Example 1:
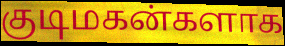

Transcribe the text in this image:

குடிமகன்களாக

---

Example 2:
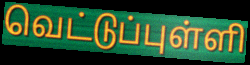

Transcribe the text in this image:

வெட்டுப்புள்ளி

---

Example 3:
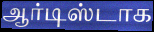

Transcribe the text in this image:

ஆர்டிஸ்டாக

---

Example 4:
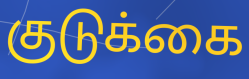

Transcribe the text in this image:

குடுக்கை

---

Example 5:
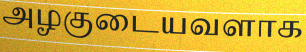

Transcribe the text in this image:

அழகுடையவளாக